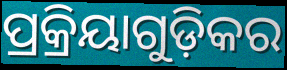
ପ୍ରକ୍ରିୟାଗୁଡ଼ିକର